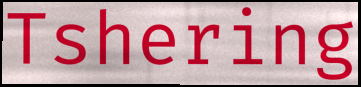
Tshering